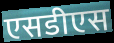
एसडीएस